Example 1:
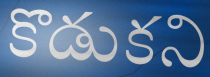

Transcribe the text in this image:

కొడుకని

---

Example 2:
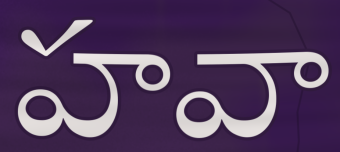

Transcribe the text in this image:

హవా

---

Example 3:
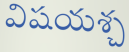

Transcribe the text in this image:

విషయశ్చ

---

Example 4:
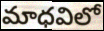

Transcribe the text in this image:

మాధవిలో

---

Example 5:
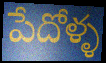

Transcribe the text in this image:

పేదోళ్ళ